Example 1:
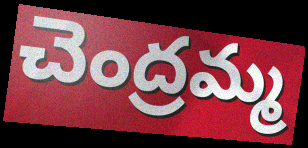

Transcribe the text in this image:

చెంద్రమ్మ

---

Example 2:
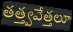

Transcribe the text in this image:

తత్త్వవేత్తలూ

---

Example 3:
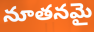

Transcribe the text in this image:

నూతనమై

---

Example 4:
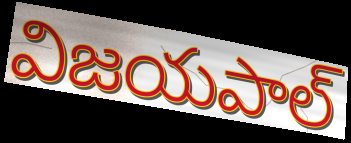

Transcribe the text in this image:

విజయపాల్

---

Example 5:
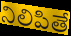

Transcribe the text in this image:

నిలిపితే